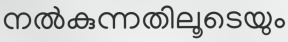
നൽകുന്നതിലൂടെയും